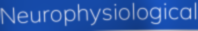
Neurophysiological